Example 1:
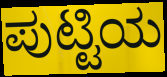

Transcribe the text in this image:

ಪುಟ್ಟಿಯ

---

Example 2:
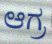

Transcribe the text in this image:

ಆಗ್ರ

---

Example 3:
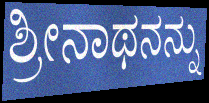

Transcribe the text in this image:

ಶ್ರೀನಾಥನನ್ನು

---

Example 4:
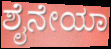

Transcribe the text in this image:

ಶೈನೇಯಾ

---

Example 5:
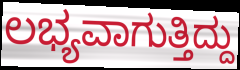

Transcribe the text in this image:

ಲಭ್ಯವಾಗುತ್ತಿದ್ದು